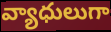
వ్యాధులుగా